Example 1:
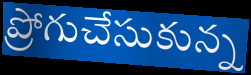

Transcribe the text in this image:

ప్రోగుచేసుకున్న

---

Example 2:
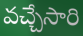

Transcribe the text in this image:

వచ్చేసారి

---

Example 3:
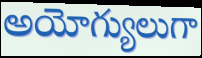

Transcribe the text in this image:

అయోగ్యులుగా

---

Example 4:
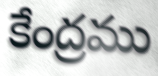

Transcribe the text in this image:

కేంద్రము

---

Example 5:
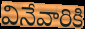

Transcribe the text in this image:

వినేవారికి